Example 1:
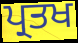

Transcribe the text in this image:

ਪ੍ਰਤਖ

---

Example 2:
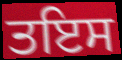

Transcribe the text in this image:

ਤਇਸ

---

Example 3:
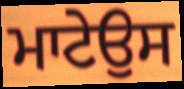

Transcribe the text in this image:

ਮਾਟੇਉਸ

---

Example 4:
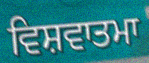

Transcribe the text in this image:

ਵਿਸ਼ਵਾਤਮਾ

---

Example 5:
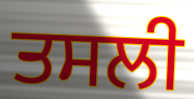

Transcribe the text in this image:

ਤਸਲੀ